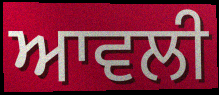
ਆਵਲੀ